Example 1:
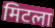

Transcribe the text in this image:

मिटला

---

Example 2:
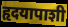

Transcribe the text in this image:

हृदयापाशी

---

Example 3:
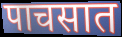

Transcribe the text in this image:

पाचसात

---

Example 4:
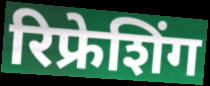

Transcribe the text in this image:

रिफ्रेशिंग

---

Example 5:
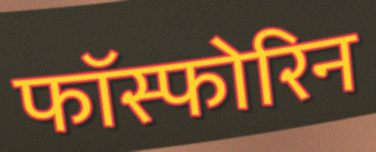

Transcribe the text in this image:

फॉस्फोरिन